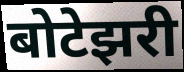
बोटेझरी